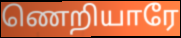
ணெறியாரே